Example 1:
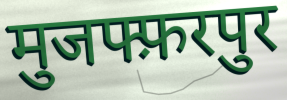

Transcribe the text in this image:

मुजफ्फ़रपुर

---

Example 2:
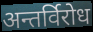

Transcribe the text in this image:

अन्तर्विरोध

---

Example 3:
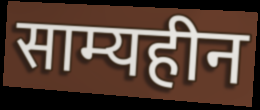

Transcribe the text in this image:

साम्यहीन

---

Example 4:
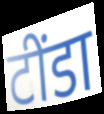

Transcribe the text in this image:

टींडा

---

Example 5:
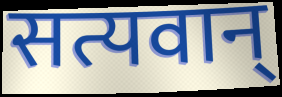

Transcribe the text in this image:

सत्यवान्